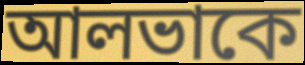
আলভাকে